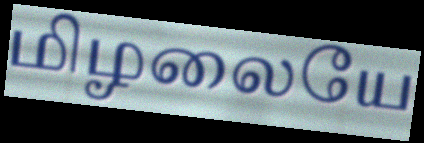
மிழலையே